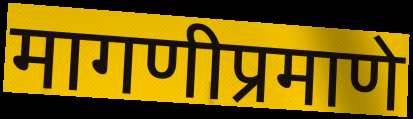
मागणीप्रमाणे